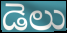
డెలు